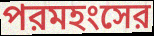
পরমহংসের